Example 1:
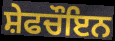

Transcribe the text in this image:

ਸ਼ੇਫਚੌਇਨ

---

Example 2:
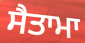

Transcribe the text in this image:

ਸੈਤਾਮਾ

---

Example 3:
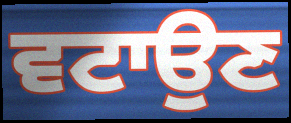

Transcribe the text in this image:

ਵਟਾਉਣ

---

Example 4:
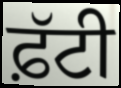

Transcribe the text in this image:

ਫ਼ੱਟੀ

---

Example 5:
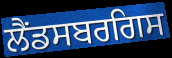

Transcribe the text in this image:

ਲੈਂਡਸਬਰਗਿਸ